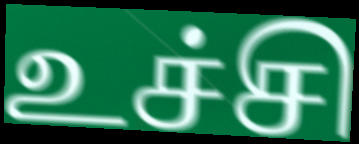
உச்சி